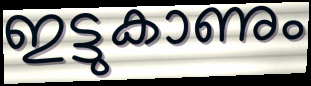
ഇട്ടുകാണും